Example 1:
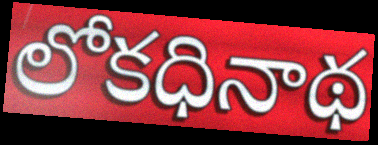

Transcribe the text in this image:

లోకధినాథ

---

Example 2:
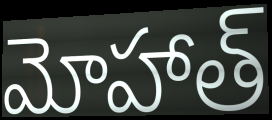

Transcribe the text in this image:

మోహాత్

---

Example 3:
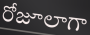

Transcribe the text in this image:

రోజూలాగా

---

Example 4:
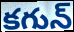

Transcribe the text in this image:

కగున్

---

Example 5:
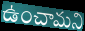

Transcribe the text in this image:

ఉంచామని